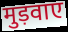
मुड़वाए